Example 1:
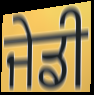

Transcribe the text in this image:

ਜੇਡੀ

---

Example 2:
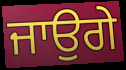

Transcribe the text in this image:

ਜਾਉਗੇ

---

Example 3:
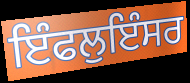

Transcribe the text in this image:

ਇੰਫਲੁਇੰਸਰ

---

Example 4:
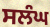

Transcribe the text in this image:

ਸਲੰਘ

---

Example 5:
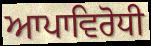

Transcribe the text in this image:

ਆਪਾਵਿਰੋਧੀ